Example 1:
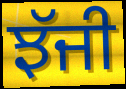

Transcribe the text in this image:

ਝੱਜੀ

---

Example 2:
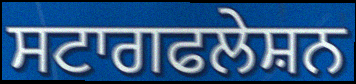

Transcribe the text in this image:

ਸਟਾਗਫਲੇਸ਼ਨ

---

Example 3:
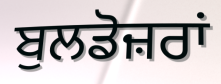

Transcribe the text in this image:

ਬੁਲਡੋਜ਼ਰਾਂ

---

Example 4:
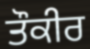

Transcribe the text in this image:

ਤੌਕੀਰ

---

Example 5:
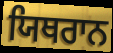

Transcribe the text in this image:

ਯਿਥਰਾਨ